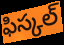
ఫిస్కల్